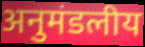
अनुमंडलीय